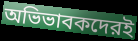
অভিভাবকদেরই